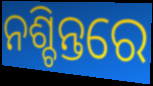
ନଶ୍ଚିନ୍ତରେ